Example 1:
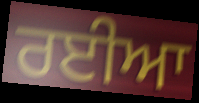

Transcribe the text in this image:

ਰਈਆ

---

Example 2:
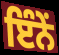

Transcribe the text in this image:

ਇੰਨੇਂ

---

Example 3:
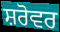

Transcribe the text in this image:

ਸ਼ਰੋਵਰ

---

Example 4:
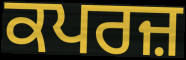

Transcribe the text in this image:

ਕਪਰਜ਼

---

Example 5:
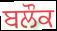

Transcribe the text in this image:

ਬਲੌਕ